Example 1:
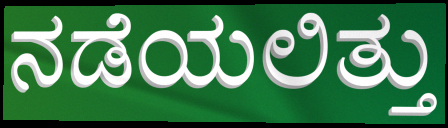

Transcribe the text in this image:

ನಡೆಯಲಿತ್ತು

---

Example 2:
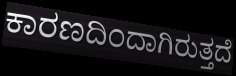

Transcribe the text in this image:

ಕಾರಣದಿಂದಾಗಿರುತ್ತದೆ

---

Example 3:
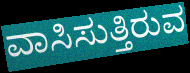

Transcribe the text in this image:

ವಾಸಿಸುತ್ತಿರುವ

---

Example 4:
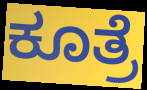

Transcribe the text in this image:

ಕೂತ್ರೆ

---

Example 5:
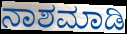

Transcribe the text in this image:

ನಾಶಮಾಡಿ